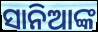
ସାନିଆଙ୍କ